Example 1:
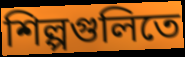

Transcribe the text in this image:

শিল্পগুলিতে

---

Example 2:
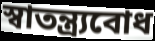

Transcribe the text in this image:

স্বাতন্ত্র্যবোধ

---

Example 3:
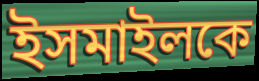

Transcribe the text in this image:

ইসমাইলকে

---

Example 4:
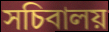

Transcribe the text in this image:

সচিবালয়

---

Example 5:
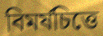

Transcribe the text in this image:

বিমর্ষচিত্তে